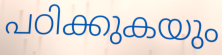
പഠിക്കുകയും